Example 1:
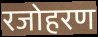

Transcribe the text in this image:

रजोहरण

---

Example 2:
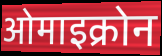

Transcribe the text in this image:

ओमाइक्रोन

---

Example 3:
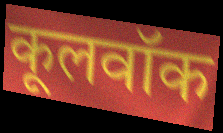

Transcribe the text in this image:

कूलवॉक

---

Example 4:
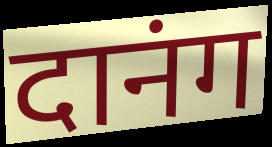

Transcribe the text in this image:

दानंग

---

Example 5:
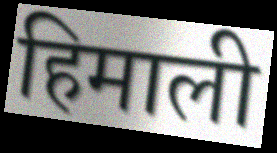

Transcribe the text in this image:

हिमाली